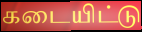
கடையிட்டு